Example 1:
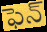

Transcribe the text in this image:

ఫెన్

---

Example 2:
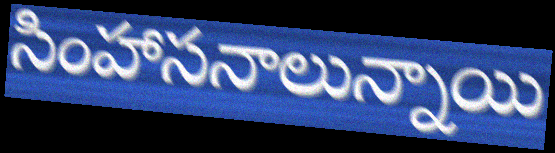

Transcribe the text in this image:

సింహాసనాలున్నాయి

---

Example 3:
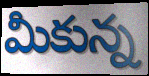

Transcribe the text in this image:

మీకున్న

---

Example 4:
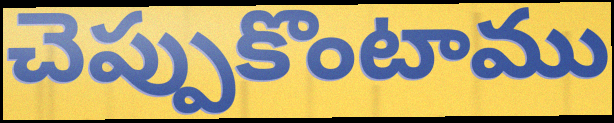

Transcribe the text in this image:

చెప్పుకొంటాము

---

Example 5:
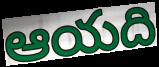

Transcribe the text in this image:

ఆయది